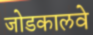
जोडकालवे